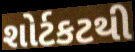
શોર્ટકટથી